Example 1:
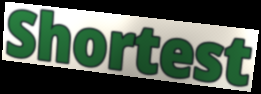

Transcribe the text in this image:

Shortest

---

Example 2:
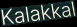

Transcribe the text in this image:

Kalakkal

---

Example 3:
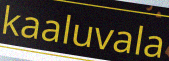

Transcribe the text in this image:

kaaluvala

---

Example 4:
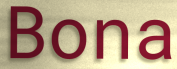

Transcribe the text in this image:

Bona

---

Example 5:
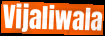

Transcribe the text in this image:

Vijaliwala